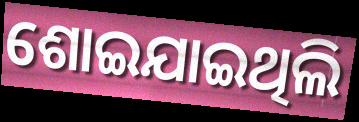
ଶୋଇଯାଇଥିଲି